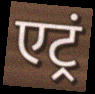
एट्रं